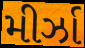
મીર્ઝા